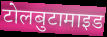
टोलबुटामाइड